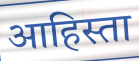
आहिस्‍ता